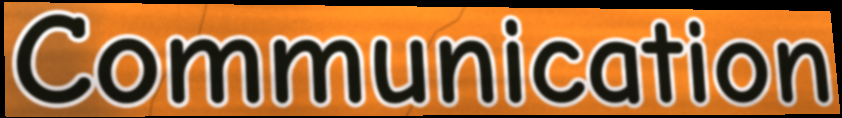
Communication